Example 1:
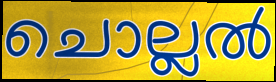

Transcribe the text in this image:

ചൊല്ലൽ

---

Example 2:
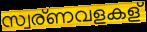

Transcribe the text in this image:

സ്വര്ണവളകള്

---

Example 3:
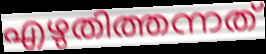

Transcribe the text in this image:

എഴുതിത്തന്നത്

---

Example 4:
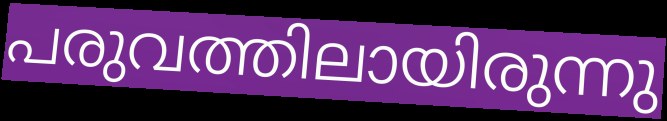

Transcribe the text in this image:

പരുവത്തിലായിരുന്നു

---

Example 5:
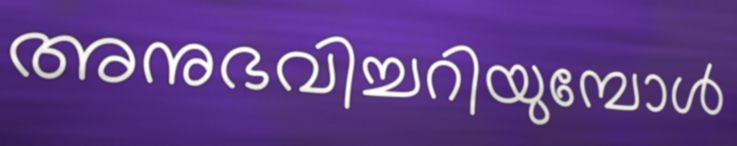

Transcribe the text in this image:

അനുഭവിച്ചറിയുമ്പോൾ